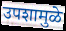
उपशामुळे